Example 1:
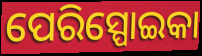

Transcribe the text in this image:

ପେରିସ୍ପୋଇକା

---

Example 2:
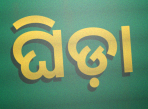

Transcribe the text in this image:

ଘିଡ଼ା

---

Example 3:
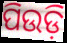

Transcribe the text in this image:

ପିଉଡ଼ି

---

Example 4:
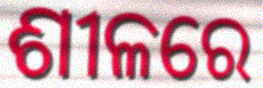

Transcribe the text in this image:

ଶୀଳରେ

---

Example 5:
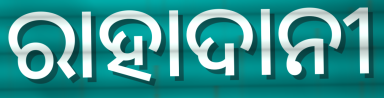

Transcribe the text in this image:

ରାହାଦାନୀ